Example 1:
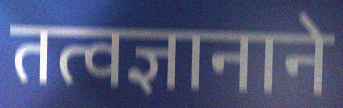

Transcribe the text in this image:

तत्वज्ञानाने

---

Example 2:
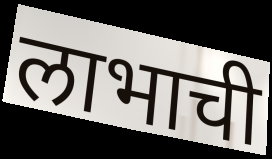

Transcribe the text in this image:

लाभाची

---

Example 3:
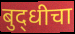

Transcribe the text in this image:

बुद्धीचा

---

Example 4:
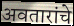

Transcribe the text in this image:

अवतारांचे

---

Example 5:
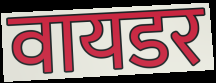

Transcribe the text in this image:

वायडर